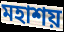
মহাশয়